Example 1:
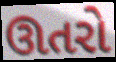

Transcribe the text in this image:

ઊતરો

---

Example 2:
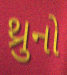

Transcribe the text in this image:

થ્રુનો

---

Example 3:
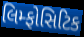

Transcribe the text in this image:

લિમ્ફોસિટિક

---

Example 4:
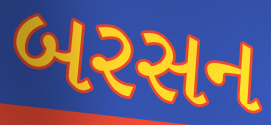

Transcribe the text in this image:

બરસન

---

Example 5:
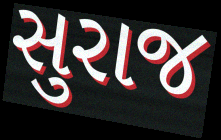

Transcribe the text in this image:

સુરાજ